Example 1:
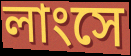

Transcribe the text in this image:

লাংসে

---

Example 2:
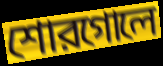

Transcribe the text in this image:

শোরগোলে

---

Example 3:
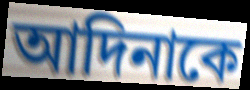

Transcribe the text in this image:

আদিনাকে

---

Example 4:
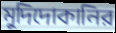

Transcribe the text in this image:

মুদিদোকানির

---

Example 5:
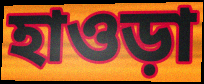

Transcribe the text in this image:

হাওড়া